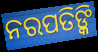
ନରପତିଙ୍କି